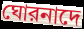
ঘোরনাদে